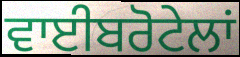
ਵਾਈਬਰੋਟੇਲਾਂ